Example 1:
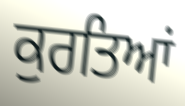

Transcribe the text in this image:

ਕੁਰਤਿਆਂ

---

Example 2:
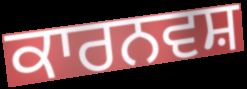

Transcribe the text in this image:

ਕਾਰਨਵਸ਼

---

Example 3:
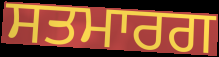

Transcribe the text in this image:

ਸਤਮਾਰਗ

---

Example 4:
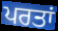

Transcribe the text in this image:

ਪਰਤਾਂ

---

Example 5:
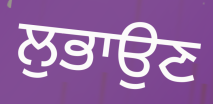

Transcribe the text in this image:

ਲੁਭਾਉਣ